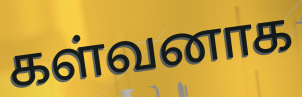
கள்வனாக